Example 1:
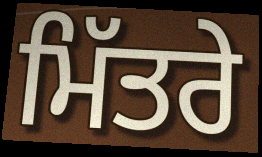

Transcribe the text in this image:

ਮਿੱਤਰੇ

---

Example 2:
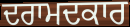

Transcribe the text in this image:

ਦਰਾਮਦਕਾਰ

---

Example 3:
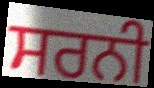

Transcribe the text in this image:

ਸਰਨੀ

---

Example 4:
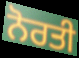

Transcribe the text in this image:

ਨੋਰਤੀ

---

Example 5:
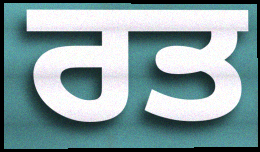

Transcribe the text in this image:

ਰਤ